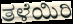
ತಳೆಯಿರಿ